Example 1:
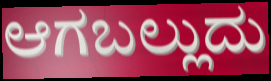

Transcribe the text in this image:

ಆಗಬಲ್ಲುದು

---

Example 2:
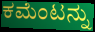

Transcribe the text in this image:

ಕಮೆಂಟನ್ನು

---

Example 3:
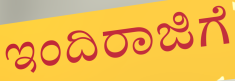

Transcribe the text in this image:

ಇಂದಿರಾಜಿಗೆ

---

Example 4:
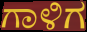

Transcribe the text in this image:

ಗಾಳಿಗ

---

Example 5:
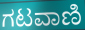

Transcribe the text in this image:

ಗಟವಾಣಿ